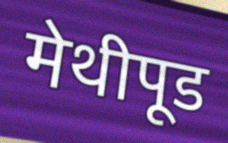
मेथीपूड